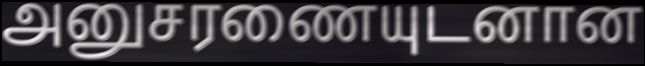
அனுசரணையுடனான